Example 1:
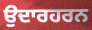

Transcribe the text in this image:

ਉਦਾਰਹਰਨ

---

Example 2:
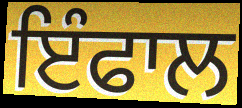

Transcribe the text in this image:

ਇੰਫਾਲ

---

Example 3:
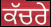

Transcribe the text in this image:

ਕੱਚਰੇ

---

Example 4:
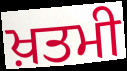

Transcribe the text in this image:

ਖ਼ਤਮੀ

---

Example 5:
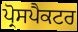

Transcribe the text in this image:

ਪ੍ਰੋਸਪੈਕਟਰ